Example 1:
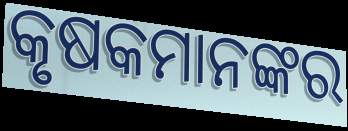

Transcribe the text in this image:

କୃଷକମାନଙ୍କର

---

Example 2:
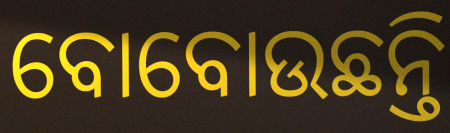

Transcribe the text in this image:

ବୋବୋଉଛନ୍ତି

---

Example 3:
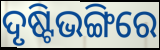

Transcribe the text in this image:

ଦୃଷ୍ଟିଭଙ୍ଗିରେ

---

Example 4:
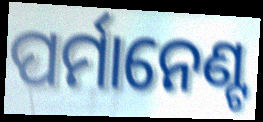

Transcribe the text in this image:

ପର୍ମାନେଣ୍ଟ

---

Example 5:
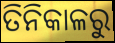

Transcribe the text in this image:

ତିନିକାଳରୁ